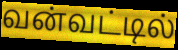
வன்வட்டில்